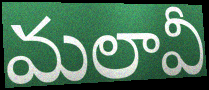
మలావీ